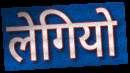
लेगियो